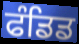
ਫੰਡਿਡ